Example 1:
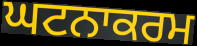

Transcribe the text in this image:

ਘਟਨਾਕਰਮ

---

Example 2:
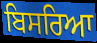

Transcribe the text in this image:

ਬਿਸਰਿਆ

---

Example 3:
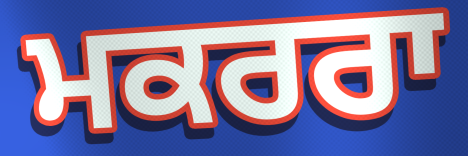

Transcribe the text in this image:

ਮਕਰਰਾ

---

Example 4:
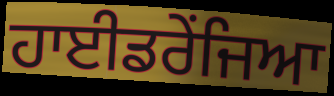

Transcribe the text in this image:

ਹਾਈਡਰੇਂਜਿਆ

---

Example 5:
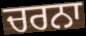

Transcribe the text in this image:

ਚਰਨਾ